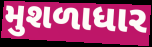
મુશળાધાર